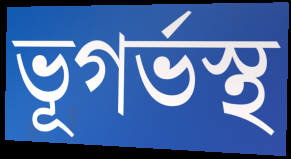
ভূগর্ভস্থ